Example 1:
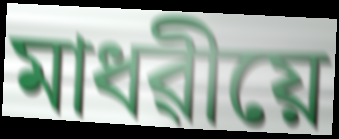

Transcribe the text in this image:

মাধৱীয়ে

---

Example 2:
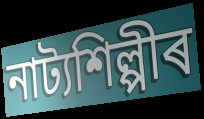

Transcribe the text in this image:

নাট্যশিল্পীৰ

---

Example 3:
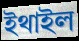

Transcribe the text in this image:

ইথাইল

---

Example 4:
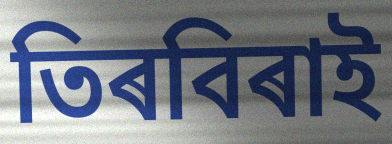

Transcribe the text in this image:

তিৰবিৰাই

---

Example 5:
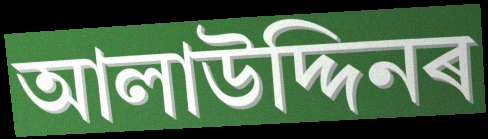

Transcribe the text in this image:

আলাউদ্দিনৰ